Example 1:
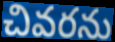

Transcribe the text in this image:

చివరను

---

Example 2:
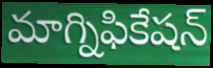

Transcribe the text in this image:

మాగ్నిఫికేషన్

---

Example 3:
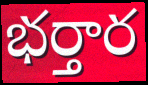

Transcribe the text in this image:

భర్తార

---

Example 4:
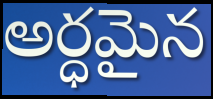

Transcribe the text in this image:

అర్ధమైన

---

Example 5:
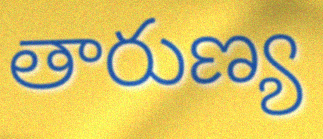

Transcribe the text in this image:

తారుణ్య